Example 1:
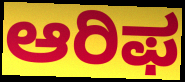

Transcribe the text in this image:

ಆರಿಫ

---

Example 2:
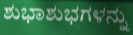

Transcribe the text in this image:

ಶುಭಾಶುಭಗಳನ್ನು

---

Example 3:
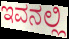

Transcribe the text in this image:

ಇವನಲ್ಲಿ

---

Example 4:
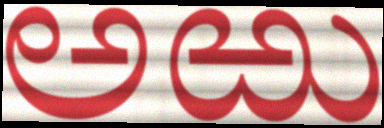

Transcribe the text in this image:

ಅಱು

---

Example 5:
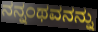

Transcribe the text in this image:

ನನ್ನಂಥವನನ್ನು